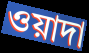
ওয়াদা